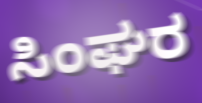
ಸಿಂಘರ